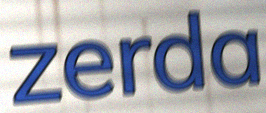
zerda